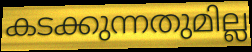
കടക്കുന്നതുമില്ല